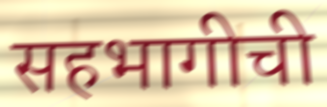
सहभागीची